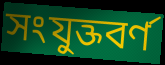
সংযুক্তবর্ণ